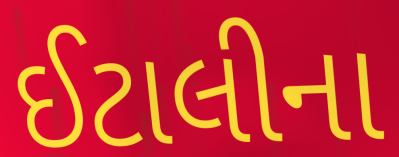
ઈટાલીના